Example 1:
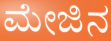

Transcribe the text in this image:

ಮೇಜಿನ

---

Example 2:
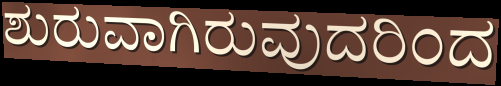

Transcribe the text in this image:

ಶುರುವಾಗಿರುವುದರಿಂದ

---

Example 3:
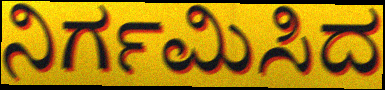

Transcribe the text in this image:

ನಿರ್ಗಮಿಸಿದ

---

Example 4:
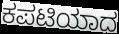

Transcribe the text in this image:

ಕಪಟಿಯಾದ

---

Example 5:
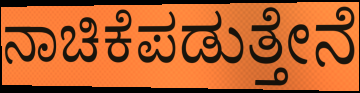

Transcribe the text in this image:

ನಾಚಿಕೆಪಡುತ್ತೇನೆ